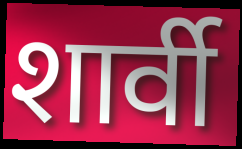
शार्वी